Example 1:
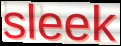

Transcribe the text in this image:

sleek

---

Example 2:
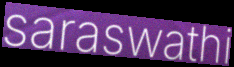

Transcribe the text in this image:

saraswathi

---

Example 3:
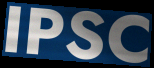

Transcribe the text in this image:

IPSC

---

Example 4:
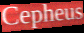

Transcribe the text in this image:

Cepheus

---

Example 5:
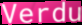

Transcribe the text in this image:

Verdu